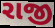
રાજી